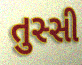
તુસ્સી